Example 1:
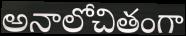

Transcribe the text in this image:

అనాలోచితంగా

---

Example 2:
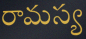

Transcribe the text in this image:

రామస్య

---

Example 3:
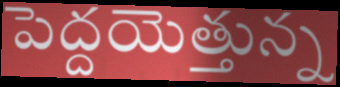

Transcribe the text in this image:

పెద్దయెత్తున్న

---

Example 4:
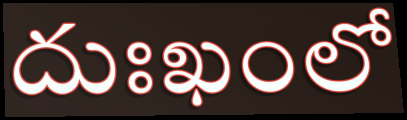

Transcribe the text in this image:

దుఃఖంలో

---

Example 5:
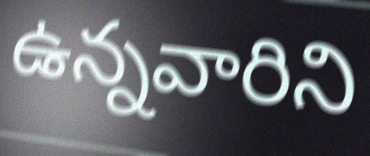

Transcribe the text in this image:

ఉన్నవారిని